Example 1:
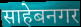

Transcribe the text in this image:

साहेबनगर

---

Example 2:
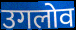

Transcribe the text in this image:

उगलोव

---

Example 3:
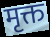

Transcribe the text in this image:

मृक्त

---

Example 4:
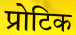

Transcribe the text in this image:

प्रोटिक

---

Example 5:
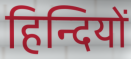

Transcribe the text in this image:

हिन्दियों